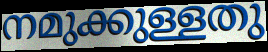
നമുക്കുള്ളതു